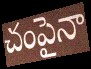
చంపైనా